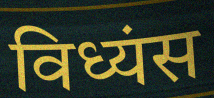
विध्यंस